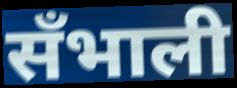
सँभाली